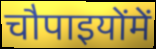
चौपाइयोंमें